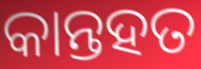
କାନ୍ତହତ